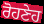
ਰੋਹਣੇਹ